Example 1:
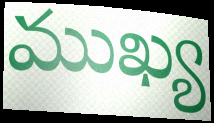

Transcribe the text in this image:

ముఖ్య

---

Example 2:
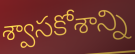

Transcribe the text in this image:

శ్వాసకోశాన్ని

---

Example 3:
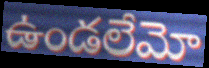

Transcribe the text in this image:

ఉండలేమో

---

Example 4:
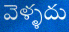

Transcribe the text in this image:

వెళ్ళదు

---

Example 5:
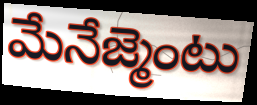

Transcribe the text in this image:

మేనేజ్మెంటు